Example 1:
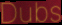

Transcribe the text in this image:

Dubs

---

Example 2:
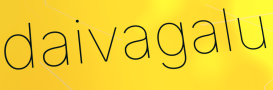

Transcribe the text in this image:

daivagalu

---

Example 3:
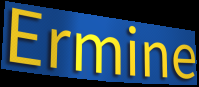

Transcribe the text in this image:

Ermine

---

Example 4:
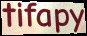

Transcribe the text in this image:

tifapy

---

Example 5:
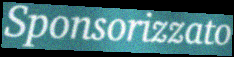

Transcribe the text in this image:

Sponsorizzato